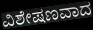
ವಿಶೇಷಣವಾದ